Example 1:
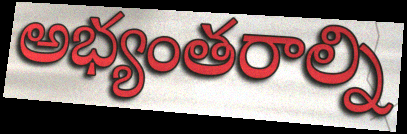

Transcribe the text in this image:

అభ్యంతరాల్ని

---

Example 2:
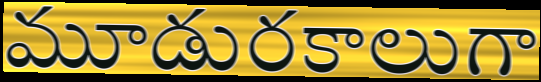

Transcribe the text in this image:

మూడురకాలుగా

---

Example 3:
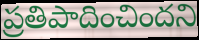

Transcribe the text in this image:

ప్రతిపాదించిందని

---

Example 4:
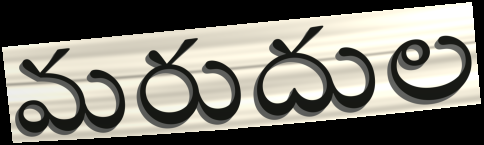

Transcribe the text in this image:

మరుదుల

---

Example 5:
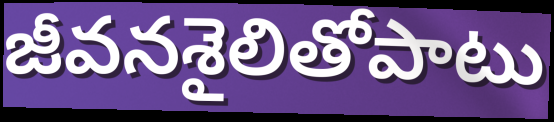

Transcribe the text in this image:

జీవనశైలితోపాటు